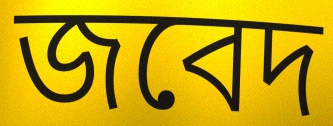
জবেদ